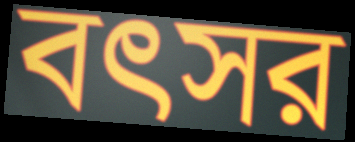
বৎসর